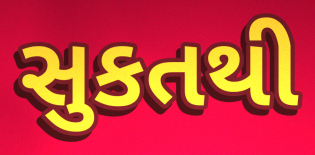
સુકતથી